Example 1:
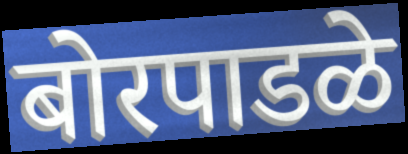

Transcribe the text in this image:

बोरपाडळे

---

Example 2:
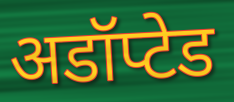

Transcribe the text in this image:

अडॉप्टेड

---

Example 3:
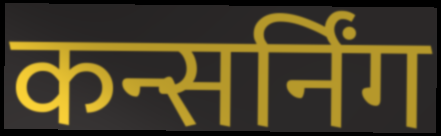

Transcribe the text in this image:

कन्सर्निंग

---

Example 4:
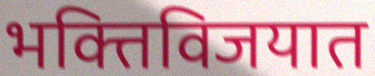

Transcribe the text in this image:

भक्तिविजयात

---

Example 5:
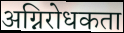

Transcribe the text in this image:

अग्निरोधकता